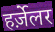
हर्ज़ेलर